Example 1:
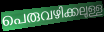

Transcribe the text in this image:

പെരുവഴിക്കലുള്ള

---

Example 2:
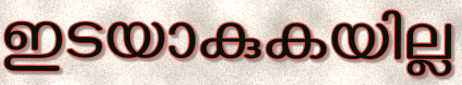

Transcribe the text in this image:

ഇടയാകുകയില്ല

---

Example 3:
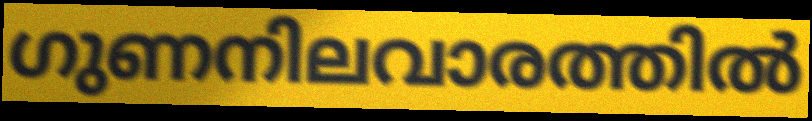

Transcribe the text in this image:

ഗുണനിലവാരത്തിൽ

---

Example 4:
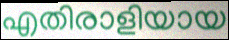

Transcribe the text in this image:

എതിരാളിയായ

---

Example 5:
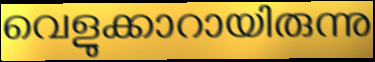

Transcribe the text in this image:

വെളുക്കാറായിരുന്നു